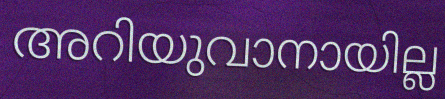
അറിയുവാനായില്ല